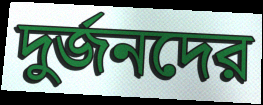
দুর্জনদের